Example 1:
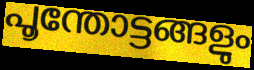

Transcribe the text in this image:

പൂന്തോട്ടങ്ങളും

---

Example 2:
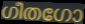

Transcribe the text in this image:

ഗീതഗോ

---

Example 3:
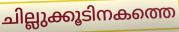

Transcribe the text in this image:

ചില്ലുക്കൂടിനകത്തെ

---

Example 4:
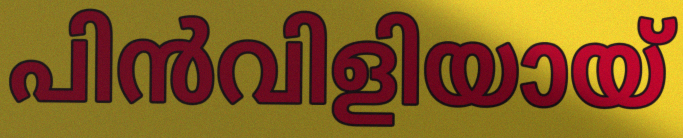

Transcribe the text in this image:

പിൻവിളിയായ്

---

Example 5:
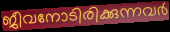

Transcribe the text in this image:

ജീവനോടിരിക്കുന്നവർ